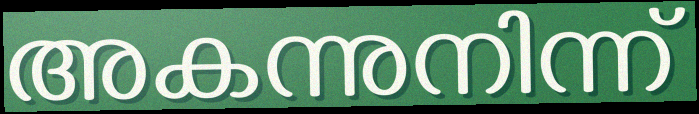
അകന്നുനിന്ന്